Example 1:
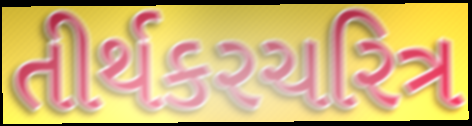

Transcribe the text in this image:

તીર્થકરચરિત્ર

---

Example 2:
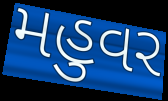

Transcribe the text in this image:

મહુવર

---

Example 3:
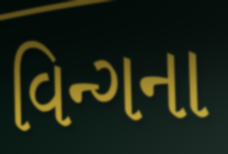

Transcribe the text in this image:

વિન્ગના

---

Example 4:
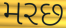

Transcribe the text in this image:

મરછ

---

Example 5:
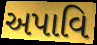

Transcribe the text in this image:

અપાવિ